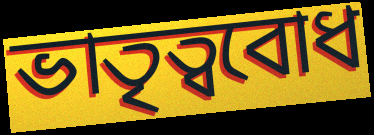
ভাতৃত্ববোধ